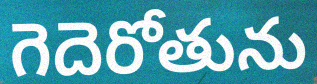
గెదెరోతును